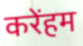
करेंहम